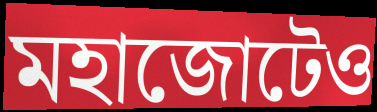
মহাজোটেও